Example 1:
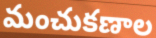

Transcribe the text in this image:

మంచుకణాల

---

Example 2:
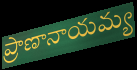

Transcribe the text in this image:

ప్రాణానాయమ్య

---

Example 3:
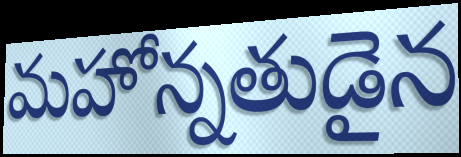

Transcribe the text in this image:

మహోన్నతుడైన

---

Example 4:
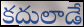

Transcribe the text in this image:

కదులాడే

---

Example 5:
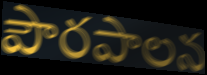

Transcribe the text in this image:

పౌరపాలన